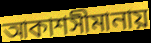
আকাশসীমানায়